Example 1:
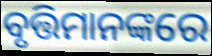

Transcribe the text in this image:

ବୃତ୍ତିମାନଙ୍କରେ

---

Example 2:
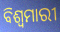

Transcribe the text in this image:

ବିଶ୍ୱମାରୀ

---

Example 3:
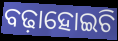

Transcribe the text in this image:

ବଢ଼ାହୋଇଚି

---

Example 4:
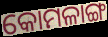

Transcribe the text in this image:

କୋମଳାଙ୍ଗ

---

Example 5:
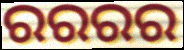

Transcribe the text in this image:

ରରରର